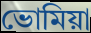
ভোমিয়া